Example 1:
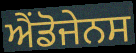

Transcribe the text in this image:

ਐਂਡੋਜੇਨਸ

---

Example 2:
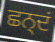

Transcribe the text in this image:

ਛਨ੍ਦਂ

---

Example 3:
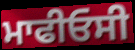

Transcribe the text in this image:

ਮਾਫੀਓਸੀ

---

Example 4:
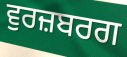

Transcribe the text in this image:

ਵੁਰਜ਼ਬਰਗ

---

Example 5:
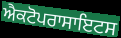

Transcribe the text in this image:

ਐਕਟੋਪਰਾਸਾਇਟਸ